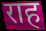
राह